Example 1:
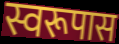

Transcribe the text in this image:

स्वरूपास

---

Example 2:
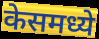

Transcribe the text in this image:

केसमध्ये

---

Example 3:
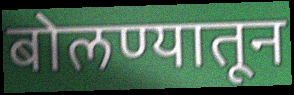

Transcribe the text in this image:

बोलण्यातून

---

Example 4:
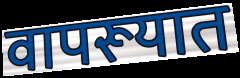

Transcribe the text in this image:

वापरूयात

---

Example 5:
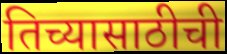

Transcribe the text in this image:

तिच्यासाठीची